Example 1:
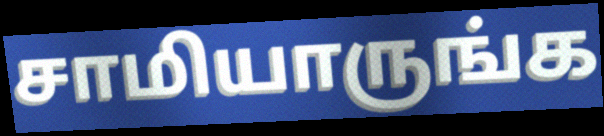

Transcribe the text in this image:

சாமியாருங்க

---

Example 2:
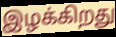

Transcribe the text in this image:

இழக்கிறது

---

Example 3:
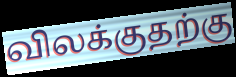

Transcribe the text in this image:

விலக்குதற்கு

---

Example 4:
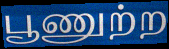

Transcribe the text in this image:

பூணுற்ற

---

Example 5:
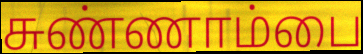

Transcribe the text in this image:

சுண்ணாம்பை